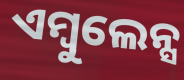
ଏମ୍ବୁଲେନ୍ସ